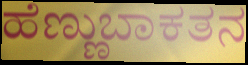
ಹೆಣ್ಣುಬಾಕತನ